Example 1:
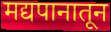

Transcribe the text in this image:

मद्यपानातून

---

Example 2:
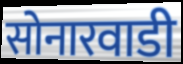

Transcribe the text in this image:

सोनारवाडी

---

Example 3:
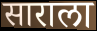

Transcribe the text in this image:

साराला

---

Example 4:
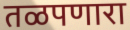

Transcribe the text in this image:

तळपणारा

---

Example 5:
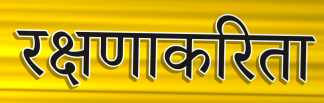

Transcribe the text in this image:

रक्षणाकरिता